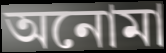
অনোমা